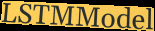
LSTMModel